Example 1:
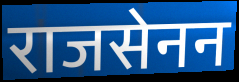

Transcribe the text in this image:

राजसेनन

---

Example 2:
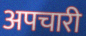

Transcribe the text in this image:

अपचारी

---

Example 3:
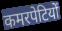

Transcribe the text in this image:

कमरपेटियों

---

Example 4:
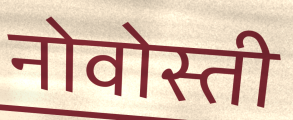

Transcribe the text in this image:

नोवोस्ती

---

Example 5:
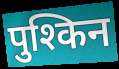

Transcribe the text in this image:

पुश्किन